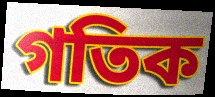
গতিক